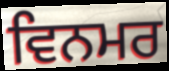
ਵਿਨਮਰ